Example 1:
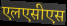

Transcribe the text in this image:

एलएसीएस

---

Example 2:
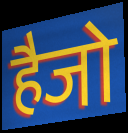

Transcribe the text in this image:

हैजो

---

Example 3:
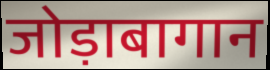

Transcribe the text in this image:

जोड़ाबागान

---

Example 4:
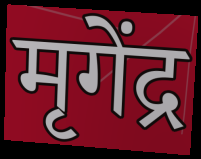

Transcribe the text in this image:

मृगेंद्र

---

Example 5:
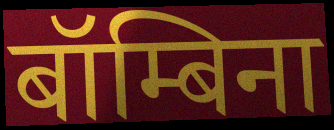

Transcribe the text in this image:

बॉम्बिना